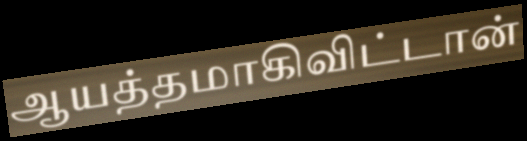
ஆயத்தமாகிவிட்டான்